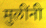
मुलींनी